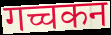
गच्चकन